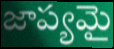
జాప్యమై